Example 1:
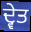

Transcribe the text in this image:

ਦ੍ਵੇਤ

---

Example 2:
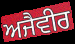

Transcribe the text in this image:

ਅਜੈਵੀਰ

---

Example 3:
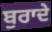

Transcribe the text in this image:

ਬੁਰਾਦੇ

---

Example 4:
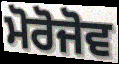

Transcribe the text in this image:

ਮੋਰੋਜੋਵ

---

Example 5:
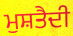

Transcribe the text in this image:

ਮੁਸ਼ਤੈਦੀ